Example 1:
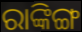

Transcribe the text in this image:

ରାଙ୍କିଙ୍ଗ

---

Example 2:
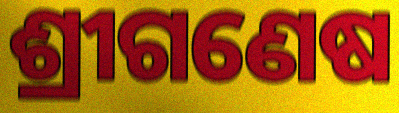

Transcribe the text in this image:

ଶ୍ରୀଗଣେଷ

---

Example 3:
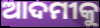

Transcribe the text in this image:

ଆଦମୀକୁ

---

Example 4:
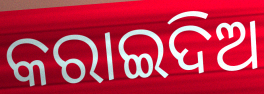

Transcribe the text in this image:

କରାଇଦିଅ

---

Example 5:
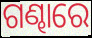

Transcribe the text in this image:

ଗଣ୍ଢାରେ